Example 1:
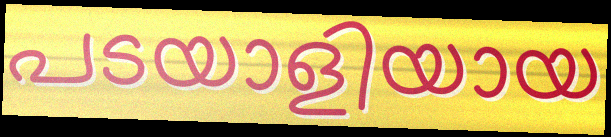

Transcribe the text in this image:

പടയാളിയായ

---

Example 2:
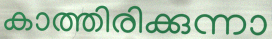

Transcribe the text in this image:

കാത്തിരിക്കുന്നാ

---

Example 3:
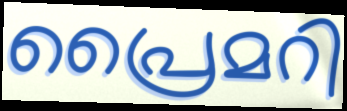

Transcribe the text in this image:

പ്രൈമറി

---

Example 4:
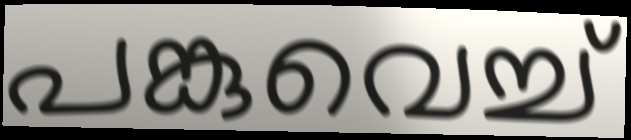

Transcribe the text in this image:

പങ്കുവെച്ച്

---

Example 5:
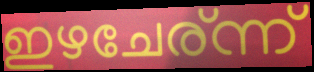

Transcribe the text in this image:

ഇഴചേര്ന്ന്